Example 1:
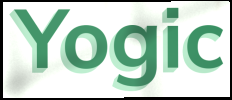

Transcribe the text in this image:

Yogic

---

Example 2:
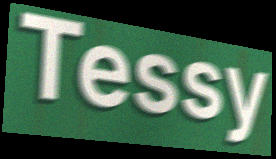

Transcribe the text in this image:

Tessy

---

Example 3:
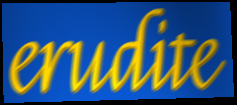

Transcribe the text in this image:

erudite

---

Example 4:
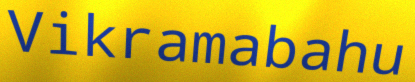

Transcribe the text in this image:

Vikramabahu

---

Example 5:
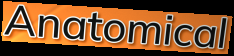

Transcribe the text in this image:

Anatomical